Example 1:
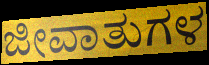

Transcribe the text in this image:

ಜೀವಾತುಗಳ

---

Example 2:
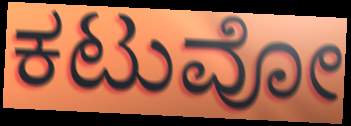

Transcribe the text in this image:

ಕಟುವೋ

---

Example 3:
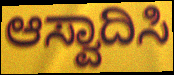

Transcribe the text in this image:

ಆಸ್ವಾದಿಸಿ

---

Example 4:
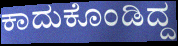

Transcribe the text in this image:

ಕಾದುಕೊಂಡಿದ್ದ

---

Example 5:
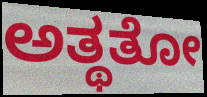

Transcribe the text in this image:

ಅತ್ಥತೋ